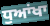
ਧੁਆਂਖਾ